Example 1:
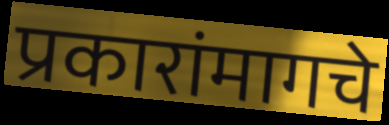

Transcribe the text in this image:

प्रकारांमागचे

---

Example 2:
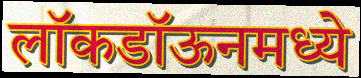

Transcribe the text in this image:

लॉकडॉऊनमध्ये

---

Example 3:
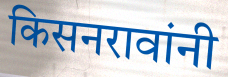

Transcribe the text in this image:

किसनरावांनी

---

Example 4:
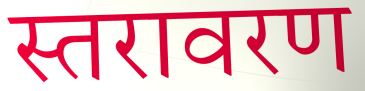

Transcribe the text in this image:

स्तरावरण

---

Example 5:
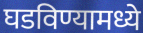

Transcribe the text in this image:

घडविण्यामध्ये